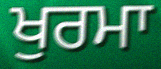
ਖੁਰਮਾ